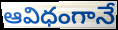
ఆవిధంగానే